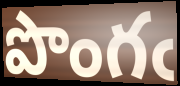
పొంగఁ